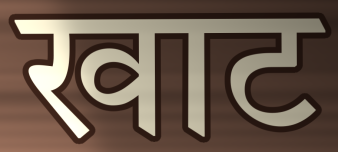
खाट